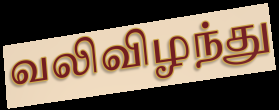
வலிவிழந்து